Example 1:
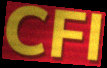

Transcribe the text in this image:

CFI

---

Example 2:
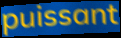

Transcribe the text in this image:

puissant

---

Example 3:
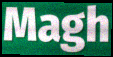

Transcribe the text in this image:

Magh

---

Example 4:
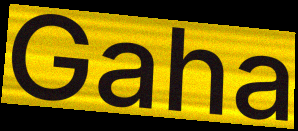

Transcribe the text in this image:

Gaha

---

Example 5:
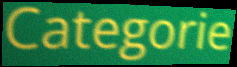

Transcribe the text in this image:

Categorie